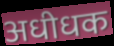
अधीधक